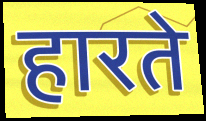
हारते